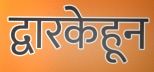
द्वारकेहून